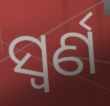
ସ୍ୱର୍ଣ